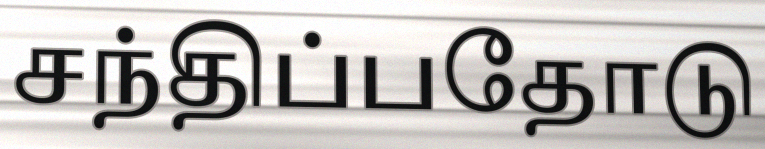
சந்திப்பதோடு